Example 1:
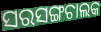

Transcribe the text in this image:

ସରସଙ୍ଗଚାଲକ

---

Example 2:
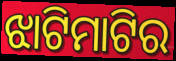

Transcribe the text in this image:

ଝାଟିମାଟିର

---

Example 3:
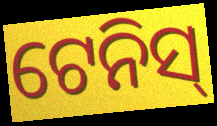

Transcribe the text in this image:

ଟେନିସ୍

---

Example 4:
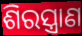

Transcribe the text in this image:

ଶିରସ୍ତ୍ରାଣ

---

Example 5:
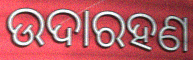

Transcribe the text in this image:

ଉଦାରହଣ